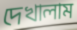
দেখালাম